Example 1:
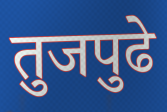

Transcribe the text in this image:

तुजपुढे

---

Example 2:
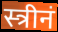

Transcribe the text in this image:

स्त्रीनं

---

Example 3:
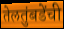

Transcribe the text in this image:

तेलतुंबडेंची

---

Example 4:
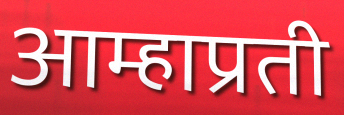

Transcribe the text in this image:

आम्हाप्रती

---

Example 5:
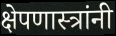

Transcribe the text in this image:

क्षेपणास्त्रांनी